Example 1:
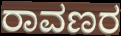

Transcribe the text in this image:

ರಾವಣರ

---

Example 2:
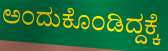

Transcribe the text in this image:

ಅಂದುಕೊಂಡಿದ್ದಕ್ಕೆ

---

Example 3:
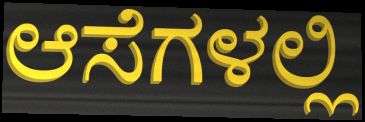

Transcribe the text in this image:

ಆಸೆಗಳಲ್ಲಿ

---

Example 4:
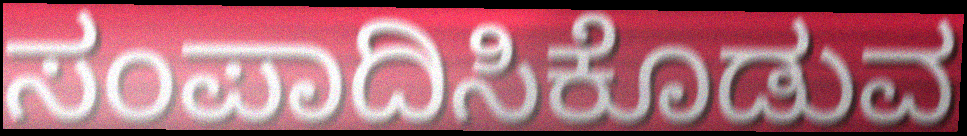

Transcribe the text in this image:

ಸಂಪಾದಿಸಿಕೊಡುವ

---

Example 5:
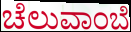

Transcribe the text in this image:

ಚೆಲುವಾಂಬೆ